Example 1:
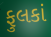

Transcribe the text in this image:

ફુલકાં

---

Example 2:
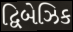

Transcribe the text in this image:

દ્વિબેઝિક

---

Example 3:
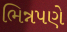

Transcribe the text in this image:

ભિન્નપણે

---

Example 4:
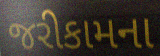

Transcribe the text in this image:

જરીકામના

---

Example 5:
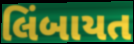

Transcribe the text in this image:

લિંબાયત